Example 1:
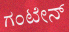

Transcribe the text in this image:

ಗಂಟೇನ್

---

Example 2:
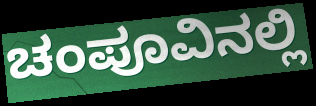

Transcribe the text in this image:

ಚಂಪೂವಿನಲ್ಲಿ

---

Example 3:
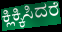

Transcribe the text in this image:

ಕ್ಲಿಕ್ಕಿಸಿದರೆ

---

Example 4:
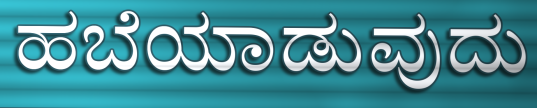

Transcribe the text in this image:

ಹಬೆಯಾಡುವುದು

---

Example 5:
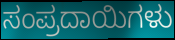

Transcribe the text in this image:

ಸಂಪ್ರದಾಯಿಗಳು